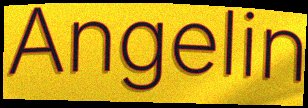
Angelin